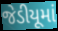
જેડીયૂમાં